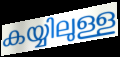
കയ്യിലുള്ള